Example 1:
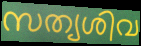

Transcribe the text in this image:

സത്യശിവ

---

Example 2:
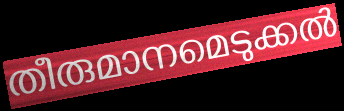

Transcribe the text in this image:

തീരുമാനമെടുക്കൽ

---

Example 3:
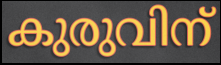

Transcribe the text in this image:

കുരുവിന്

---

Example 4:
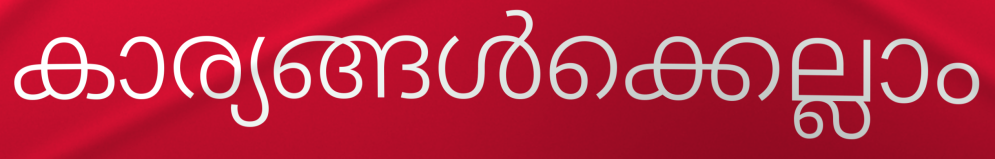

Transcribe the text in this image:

കാര്യങ്ങൾക്കെല്ലാം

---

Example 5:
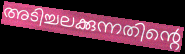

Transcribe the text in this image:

അടിച്ചലക്കുന്നതിന്റെ